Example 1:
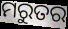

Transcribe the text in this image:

ମରୁତର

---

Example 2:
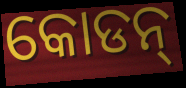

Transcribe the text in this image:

କୋଡନ୍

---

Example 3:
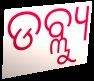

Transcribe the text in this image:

ଡବ୍ଲ୍ୟୁ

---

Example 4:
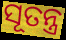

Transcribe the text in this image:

ସୂତନ୍ତ୍ର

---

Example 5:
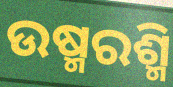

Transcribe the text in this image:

ଉଷ୍ମରଶ୍ମି